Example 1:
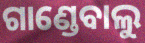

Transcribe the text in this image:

ଗାଣ୍ଡେବାଲୁ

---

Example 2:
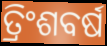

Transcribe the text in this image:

ତ୍ରିଂଶବର୍ଷ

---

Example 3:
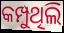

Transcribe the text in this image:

କମ୍ପୁଥିଲି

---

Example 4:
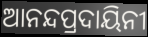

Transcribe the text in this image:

ଆନନ୍ଦପ୍ରଦାୟିନୀ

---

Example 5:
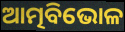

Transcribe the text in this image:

ଆତ୍ମବିଭୋଳ